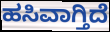
ಹಸಿವಾಗ್ತಿದೆ